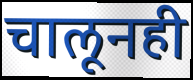
चालूनही